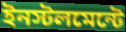
ইনস্টলমেন্টে